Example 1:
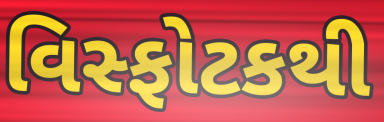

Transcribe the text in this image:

વિસ્ફોટકથી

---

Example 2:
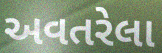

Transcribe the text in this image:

અવતરેલા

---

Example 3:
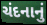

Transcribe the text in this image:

ચંદનાનું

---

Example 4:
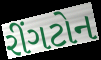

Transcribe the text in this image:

રીંગટોન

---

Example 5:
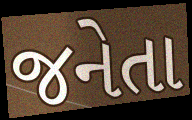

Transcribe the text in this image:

જનેતા